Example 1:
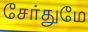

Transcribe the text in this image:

சேர்துமே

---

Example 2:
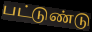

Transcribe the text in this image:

பட்டுண்டு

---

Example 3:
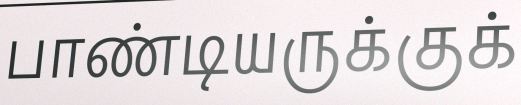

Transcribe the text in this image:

பாண்டியருக்குக்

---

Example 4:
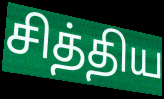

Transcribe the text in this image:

சித்திய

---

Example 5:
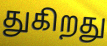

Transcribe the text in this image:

துகிறது